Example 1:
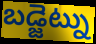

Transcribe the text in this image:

బడ్జెట్ను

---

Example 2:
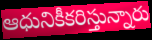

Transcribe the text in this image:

ఆధునికీకరిస్తున్నారు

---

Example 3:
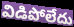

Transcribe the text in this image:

విడిపోలేదు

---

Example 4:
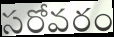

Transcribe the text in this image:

సరోవరం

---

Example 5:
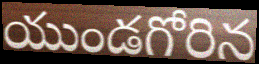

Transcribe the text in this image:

యుండగోరిన